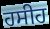
ਹਸੀਹ